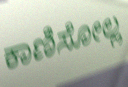
ಕಾಣಿಸೋಲ್ಲ